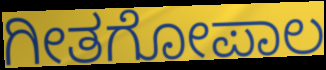
ಗೀತಗೋಪಾಲ